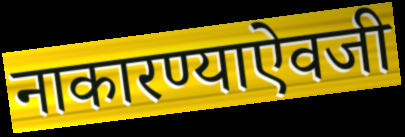
नाकारण्याऐवजी